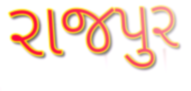
રાજપુર